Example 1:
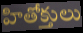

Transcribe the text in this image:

హితోక్తులు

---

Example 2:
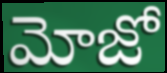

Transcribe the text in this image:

మోజో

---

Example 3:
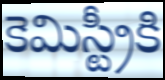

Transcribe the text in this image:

కెమిస్ట్రీకి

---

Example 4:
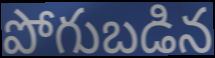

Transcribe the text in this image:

పోగుబడిన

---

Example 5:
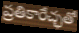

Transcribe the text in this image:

ప్రతికారేచ్ఛతో